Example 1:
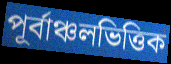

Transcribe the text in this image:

পূর্বাঞ্চলভিত্তিক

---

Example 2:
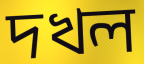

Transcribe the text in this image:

দখল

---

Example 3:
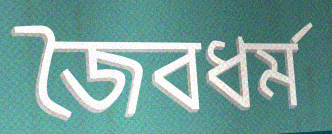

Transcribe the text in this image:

জৈবধর্ম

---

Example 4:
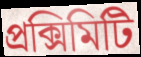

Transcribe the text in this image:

প্রক্সিমিটি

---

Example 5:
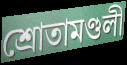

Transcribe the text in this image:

শ্রোতামণ্ডলী